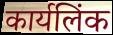
कार्यलिंक